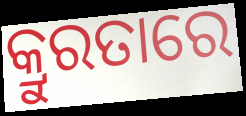
କ୍ରୁରତାରେ